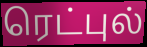
ரெட்புல்